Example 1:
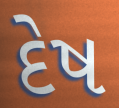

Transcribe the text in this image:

દેષ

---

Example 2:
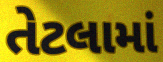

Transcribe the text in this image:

તેટલામાં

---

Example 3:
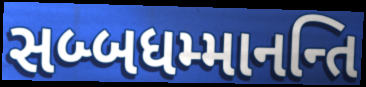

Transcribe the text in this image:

સબ્બધમ્માનન્તિ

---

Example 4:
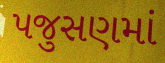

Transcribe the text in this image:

પજુસણમાં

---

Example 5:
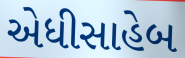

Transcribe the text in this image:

એધીસાહેબ